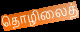
தொழிலைத்